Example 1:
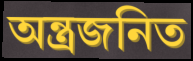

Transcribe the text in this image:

অন্ত্রজনিত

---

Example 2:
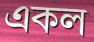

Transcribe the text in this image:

একল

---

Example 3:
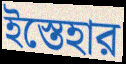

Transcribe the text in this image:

ইস্তেহার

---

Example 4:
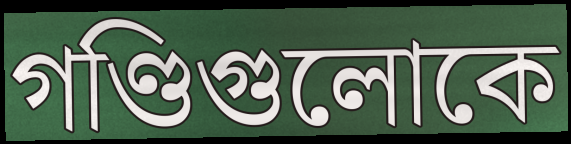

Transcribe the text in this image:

গণ্ডিগুলোকে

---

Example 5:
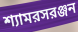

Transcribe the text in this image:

শ্যামরসরঞ্জন